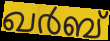
ഖർബ്